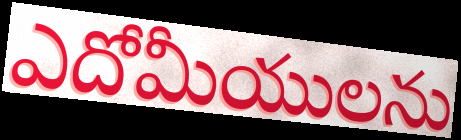
ఎదోమీయులను